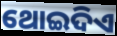
ଥୋଇଦିଏ